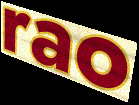
rao